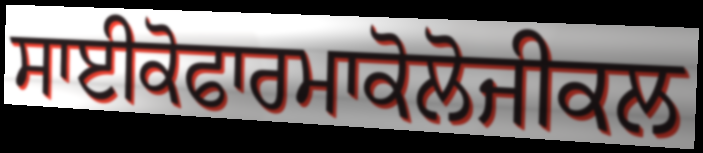
ਸਾਈਕੋਫਾਰਮਾਕੋਲੋਜੀਕਲ